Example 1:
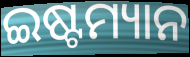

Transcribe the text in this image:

ଇଷ୍ଟମ୍ୟାନ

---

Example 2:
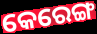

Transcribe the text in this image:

କେରେଙ୍ଗ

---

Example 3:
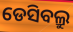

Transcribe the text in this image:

ଡେସିବଲ୍ରୁ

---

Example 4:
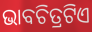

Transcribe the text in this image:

ଭାବଚିତ୍ରଟିଏ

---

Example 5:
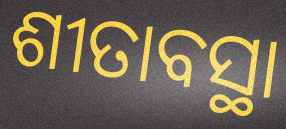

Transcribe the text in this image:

ଶୀତାବସ୍ଥା